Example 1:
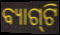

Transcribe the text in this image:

ବ୍ୟାଗ୍‌ଟି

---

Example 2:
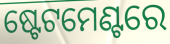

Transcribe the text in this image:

ଷ୍ଟେଟମେଣ୍ଟରେ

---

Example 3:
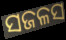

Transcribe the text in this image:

ସଜଳସ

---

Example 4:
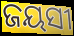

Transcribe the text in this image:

ଜୟସୀ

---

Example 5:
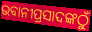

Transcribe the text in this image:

ଭବାନୀପ୍ରସାଦଙ୍କଠୁଁ